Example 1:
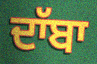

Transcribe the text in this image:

ਦਾੱਬਾ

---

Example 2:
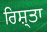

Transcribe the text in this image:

ਰਿਸ਼੍ਤਾ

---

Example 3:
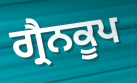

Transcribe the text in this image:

ਗ੍ਰੈਨਕੂਪ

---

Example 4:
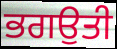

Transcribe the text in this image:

ਭਗਉਤੀ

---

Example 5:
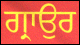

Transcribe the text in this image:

ਗ੍ਰਾਉਰ